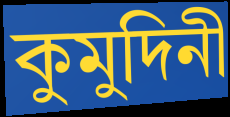
কুমুদিনী